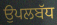
ਉਪਲਬੱਧ